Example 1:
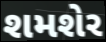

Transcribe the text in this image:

શમશેર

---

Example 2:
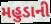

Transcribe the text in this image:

મહુડાની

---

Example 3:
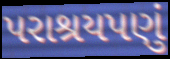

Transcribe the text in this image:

પરાશ્રયપણું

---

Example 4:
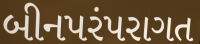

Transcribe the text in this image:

બીનપરંપરાગત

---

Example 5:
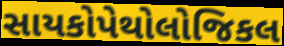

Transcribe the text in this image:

સાયકોપેથોલોજિકલ